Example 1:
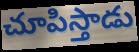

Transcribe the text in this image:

చూపిస్తాడు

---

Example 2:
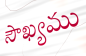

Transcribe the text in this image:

సౌఖ్యము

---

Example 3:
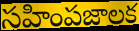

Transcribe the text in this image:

సహింపజాలక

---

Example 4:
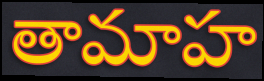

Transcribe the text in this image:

తామాహ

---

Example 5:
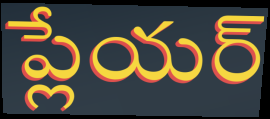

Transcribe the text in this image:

ప్లేయర్